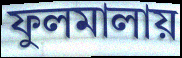
ফুলমালায়